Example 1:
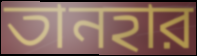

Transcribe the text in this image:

তানহার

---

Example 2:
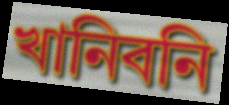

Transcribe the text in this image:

খানিবনি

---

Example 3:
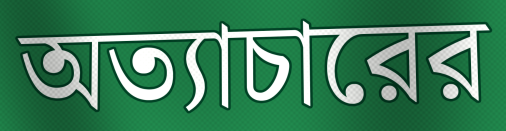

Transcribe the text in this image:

অত্যাচারের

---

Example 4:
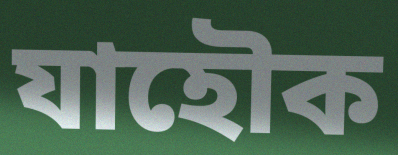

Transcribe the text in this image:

যাহৌক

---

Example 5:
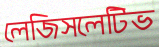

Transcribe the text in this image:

লেজিসলেটিভ